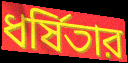
ধর্ষিতার